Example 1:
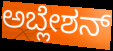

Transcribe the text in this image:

ಅಬ್ಲೇಶನ್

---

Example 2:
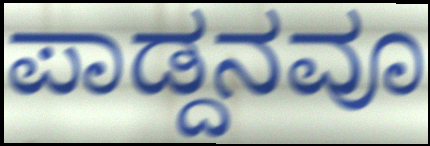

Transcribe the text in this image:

ಪಾಡ್ದನವೂ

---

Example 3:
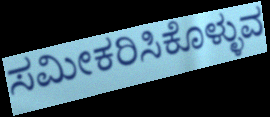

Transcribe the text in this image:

ಸಮೀಕರಿಸಿಕೊಳ್ಳುವ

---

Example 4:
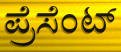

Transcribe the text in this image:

ಪ್ರೆಸೆಂಟ್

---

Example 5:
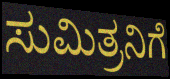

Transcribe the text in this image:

ಸುಮಿತ್ರನಿಗೆ